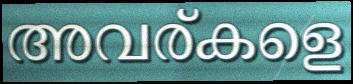
അവര്കളെ